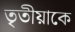
তৃতীয়াকে